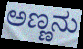
ಅಣ್ಣನು